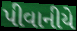
પીવાનીયે